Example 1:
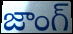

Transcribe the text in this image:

జాంగ్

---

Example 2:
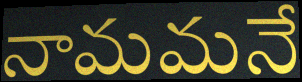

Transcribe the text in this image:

నామమనే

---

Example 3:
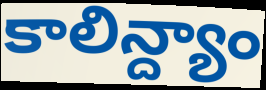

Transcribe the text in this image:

కాలిన్ద్యాం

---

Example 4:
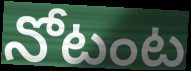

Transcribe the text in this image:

నోటంట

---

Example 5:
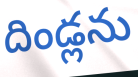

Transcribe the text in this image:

దిండ్లను